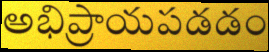
అభిప్రాయపడడం